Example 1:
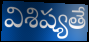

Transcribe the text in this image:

విశిష్యతే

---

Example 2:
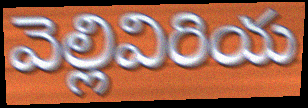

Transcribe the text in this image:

వెల్లివిరియ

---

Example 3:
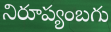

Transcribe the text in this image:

నిరూప్యంబగు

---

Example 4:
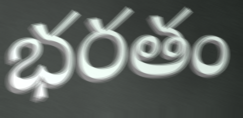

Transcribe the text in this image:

భరతం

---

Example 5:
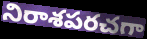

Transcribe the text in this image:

నిరాశపరచగా